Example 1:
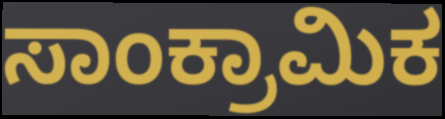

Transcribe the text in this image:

ಸಾಂಕ್ರಾಮಿಕ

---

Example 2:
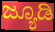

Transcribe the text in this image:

ಜ್ಯೂಡಿ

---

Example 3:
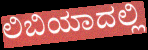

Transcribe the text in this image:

ಲಿಬಿಯಾದಲ್ಲಿ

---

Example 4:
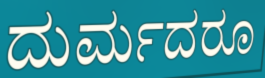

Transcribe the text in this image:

ದುರ್ಮದರೂ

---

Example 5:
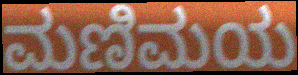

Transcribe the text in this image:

ಮಣಿಮಯ